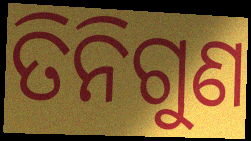
ତିନିଗୁଣ